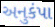
અનુકંપા